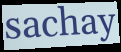
sachay